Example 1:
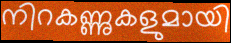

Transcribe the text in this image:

നിറകണ്ണുകളുമായി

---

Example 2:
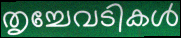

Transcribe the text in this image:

തൃച്ചേവടികൾ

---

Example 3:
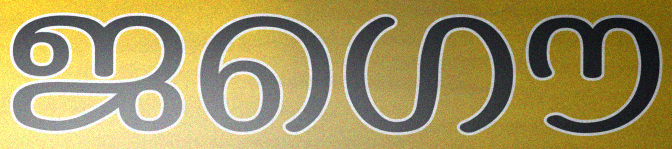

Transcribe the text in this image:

ജഗൌ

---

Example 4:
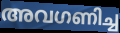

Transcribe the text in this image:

അവഗണിച്ച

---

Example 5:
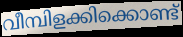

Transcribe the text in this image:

വീമ്പിളക്കിക്കൊണ്ട്